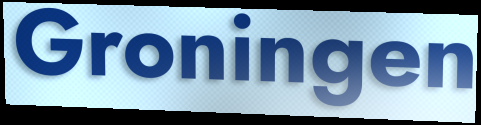
Groningen